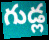
గుడ్ల